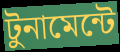
টুনামেন্টে